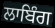
ਲਾਬਿੰਗ